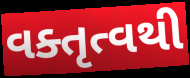
વક્તૃત્વથી